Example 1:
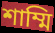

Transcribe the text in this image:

শাম্মি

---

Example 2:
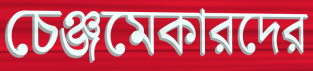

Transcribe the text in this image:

চেঞ্জমেকারদের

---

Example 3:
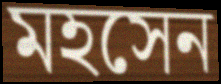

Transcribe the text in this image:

মহসেন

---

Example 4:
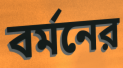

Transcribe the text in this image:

বর্মনের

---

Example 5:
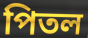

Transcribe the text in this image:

পিতল